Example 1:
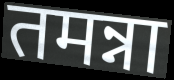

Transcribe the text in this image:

तमन्ना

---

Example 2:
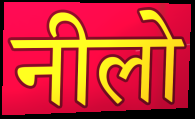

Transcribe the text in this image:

नीलो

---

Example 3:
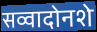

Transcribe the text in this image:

सव्वादोनशे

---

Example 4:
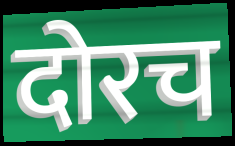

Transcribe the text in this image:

दोरच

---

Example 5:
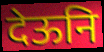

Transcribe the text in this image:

देऊनि